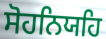
ਸੋਹਨਿਯਹਿ